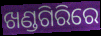
ଖଣ୍ଡଗିରିରେ